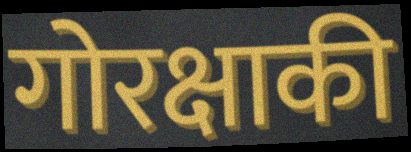
गोरक्षाकी